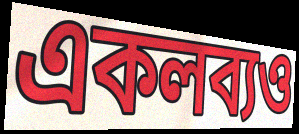
একলব্যও